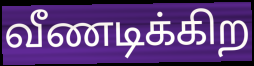
வீணடிக்கிற